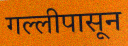
गल्लीपासून